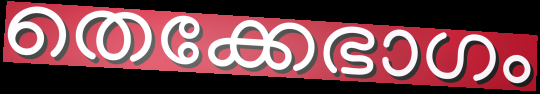
തെക്കേഭാഗം